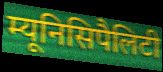
म्यूनिसिपैलिटी